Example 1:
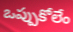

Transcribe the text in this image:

ఒప్పుకోలేం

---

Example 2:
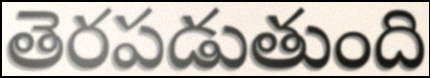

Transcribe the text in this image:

తెరపడుతుంది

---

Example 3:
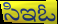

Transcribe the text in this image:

సిఇఓ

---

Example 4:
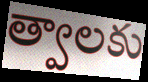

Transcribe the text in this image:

త్వాలకు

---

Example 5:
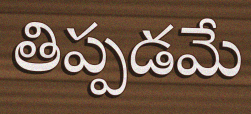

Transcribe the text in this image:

తిప్పడమే